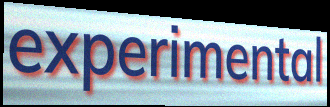
experimental